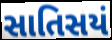
સાતિસયં